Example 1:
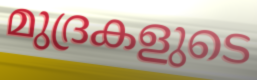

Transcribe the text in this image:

മുദ്രകളുടെ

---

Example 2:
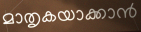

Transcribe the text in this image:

മാതൃകയാക്കാൻ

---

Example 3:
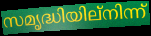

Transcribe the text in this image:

സമൃദ്ധിയില്നിന്ന്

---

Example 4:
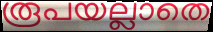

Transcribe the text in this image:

രൂപയല്ലാതെ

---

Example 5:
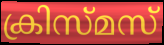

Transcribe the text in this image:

ക്രിസ്മസ്